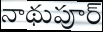
నాథుపూర్